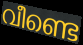
വീണ്ടെ